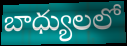
బాధ్యులలో